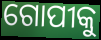
ଗୋପୀକୁ